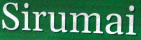
Sirumai